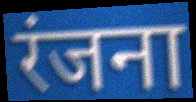
रंजना